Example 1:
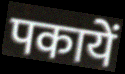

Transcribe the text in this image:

पकायें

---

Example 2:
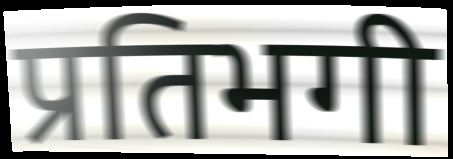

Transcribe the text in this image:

प्रतिभगी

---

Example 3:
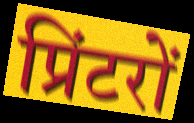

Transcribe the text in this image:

प्रिंटरों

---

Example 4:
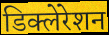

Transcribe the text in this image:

डिक्लेरेशन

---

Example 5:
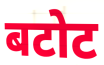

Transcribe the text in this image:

बटोट